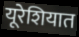
यूरेशियात